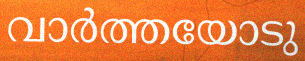
വാർത്തയോടു